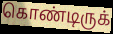
கொண்டிருக்